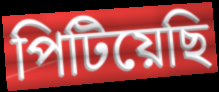
পিটিয়েছি